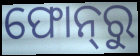
ଫୋନ୍‌ରୁ